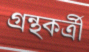
গ্রন্থকর্ত্রী